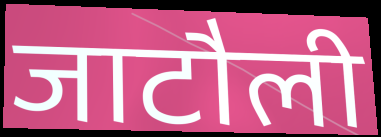
जाटौली